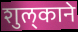
शुल्काने